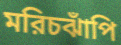
মরিচঝাঁপি